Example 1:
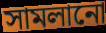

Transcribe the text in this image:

সামলানো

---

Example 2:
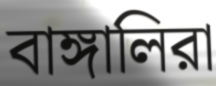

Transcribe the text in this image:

বাঙ্গালিরা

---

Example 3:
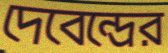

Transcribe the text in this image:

দেবেন্দ্রের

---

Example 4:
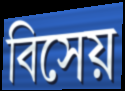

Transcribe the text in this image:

বিসেয়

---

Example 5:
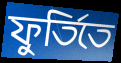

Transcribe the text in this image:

ফুর্তিতে